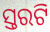
ସ୍ତରଟି